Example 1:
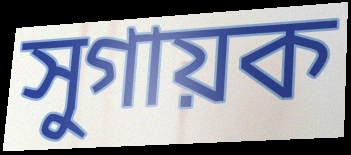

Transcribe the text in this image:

সুগায়ক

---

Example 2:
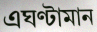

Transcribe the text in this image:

এঘণ্টামান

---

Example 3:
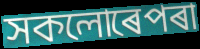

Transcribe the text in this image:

সকলোৰেপৰা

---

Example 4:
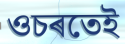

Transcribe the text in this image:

ওচৰতেই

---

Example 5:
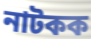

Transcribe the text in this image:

নাটকক